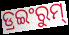
ଡ୍ରଇଂରୁମ୍